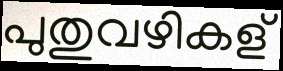
പുതുവഴികള്